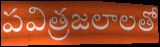
పవిత్రజలాలతో